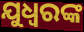
ଯୁଧ୍ୱରଙ୍କ